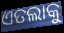
ଏତଲାକୁ